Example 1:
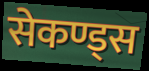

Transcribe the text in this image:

सेकण्ड्स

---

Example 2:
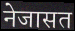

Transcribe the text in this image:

नेजासत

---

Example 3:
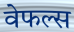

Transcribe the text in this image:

वेफल्स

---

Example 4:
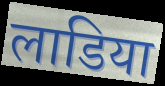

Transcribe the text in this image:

लाडिया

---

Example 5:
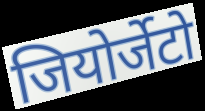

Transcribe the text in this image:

जियोर्जेटो